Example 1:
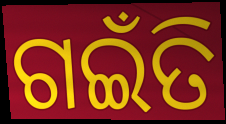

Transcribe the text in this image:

ଗଇଁତି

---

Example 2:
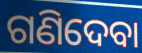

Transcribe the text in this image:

ଗଣିଦେବା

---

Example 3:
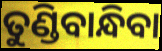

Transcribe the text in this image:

ତୁଣ୍ଡିବାନ୍ଧିବା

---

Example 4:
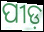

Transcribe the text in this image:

ପୀଡ଼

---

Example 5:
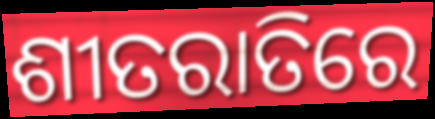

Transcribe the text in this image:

ଶୀତରାତିରେ